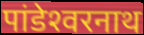
पांडेश्वरनाथ